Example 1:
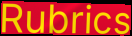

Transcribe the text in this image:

Rubrics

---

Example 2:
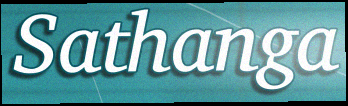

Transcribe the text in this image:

Sathanga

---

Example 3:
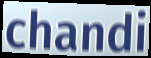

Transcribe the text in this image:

chandi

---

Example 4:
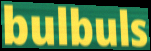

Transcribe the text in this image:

bulbuls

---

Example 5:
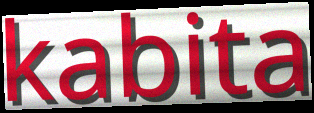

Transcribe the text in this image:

kabita